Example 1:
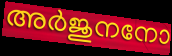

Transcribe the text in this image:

അർജുനനോ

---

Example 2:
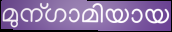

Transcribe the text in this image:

മുന്ഗാമിയായ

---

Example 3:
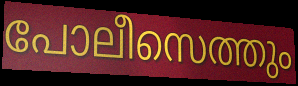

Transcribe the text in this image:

പോലീസെത്തും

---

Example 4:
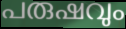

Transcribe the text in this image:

പരുഷവും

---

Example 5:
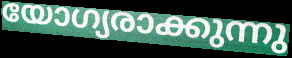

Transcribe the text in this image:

യോഗ്യരാക്കുന്നു